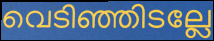
വെടിഞ്ഞിടല്ലേ